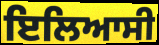
ਇਲਿਆਸੀ